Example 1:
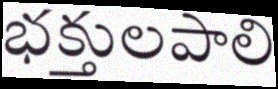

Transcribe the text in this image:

భక్తులపాలి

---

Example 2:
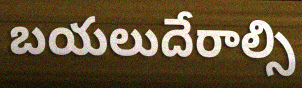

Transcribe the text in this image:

బయలుదేరాల్సి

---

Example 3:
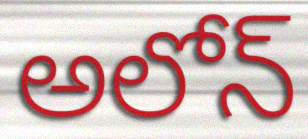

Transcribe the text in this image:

అలోన్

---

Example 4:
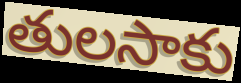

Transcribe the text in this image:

తులసాకు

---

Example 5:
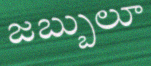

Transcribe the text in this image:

జబ్బులూ